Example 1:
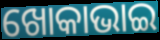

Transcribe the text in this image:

ଖୋକାଭାଇ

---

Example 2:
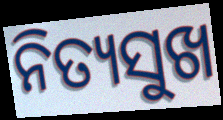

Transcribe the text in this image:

ନିତ୍ୟସୁଖ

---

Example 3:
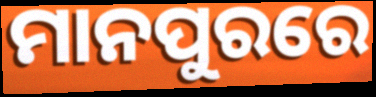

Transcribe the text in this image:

ମାନପୁରରେ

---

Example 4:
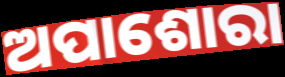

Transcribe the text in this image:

ଅପାଶୋରା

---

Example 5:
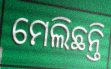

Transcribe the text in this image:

ମେଲିଛନ୍ତି